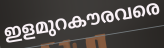
ഇളമുറകൗരവരെ